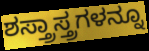
ಶಸ್ತ್ರಾಸ್ತ್ರಗಳನ್ನೂ